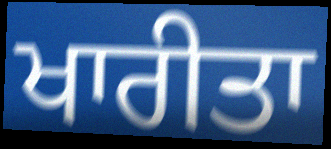
ਖਾਰੀਤਾ